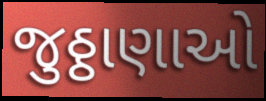
જુઠ્ઠાણાઓ